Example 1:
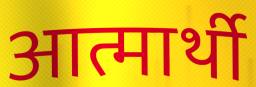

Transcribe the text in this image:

आत्मार्थी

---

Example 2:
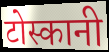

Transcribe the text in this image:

टोस्कानी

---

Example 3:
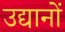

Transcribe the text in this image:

उद्यानों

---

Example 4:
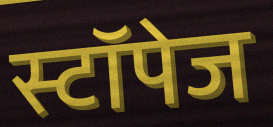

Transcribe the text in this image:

स्टॉपेज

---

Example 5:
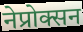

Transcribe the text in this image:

नेप्रोक्सन